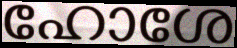
ഹോശേ